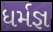
ધર્મજ્ઞ